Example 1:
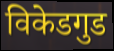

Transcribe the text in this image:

विकेडगुड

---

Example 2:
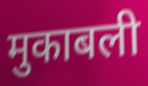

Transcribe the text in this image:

मुकाबली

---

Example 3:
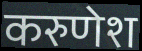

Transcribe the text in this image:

करुणेश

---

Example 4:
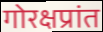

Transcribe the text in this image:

गोरक्षप्रांत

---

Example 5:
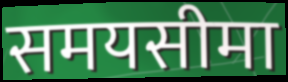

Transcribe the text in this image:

समयसीमा